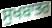
ਸੁਖਬਾਤਰ